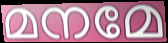
മനമേ